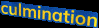
culmination